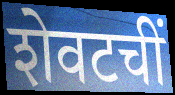
शेवटचीं